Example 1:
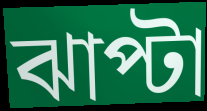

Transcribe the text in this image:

ঝাপ্টা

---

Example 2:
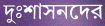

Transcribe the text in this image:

দুঃশাসনদের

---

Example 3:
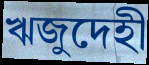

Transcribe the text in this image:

ঋজুদেহী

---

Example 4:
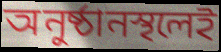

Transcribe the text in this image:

অনুষ্ঠানস্থলেই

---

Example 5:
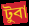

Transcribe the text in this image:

টুবা